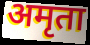
अमृता